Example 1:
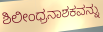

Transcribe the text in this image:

ಶಿಲೀಂಧ್ರನಾಶಕವನ್ನು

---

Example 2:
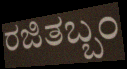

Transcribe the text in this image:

ರಜಿತಬ್ಬಂ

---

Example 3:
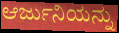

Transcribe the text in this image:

ಆರ್ಜುನಿಯನ್ನು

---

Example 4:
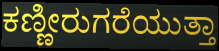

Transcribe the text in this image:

ಕಣ್ಣೀರುಗರೆಯುತ್ತಾ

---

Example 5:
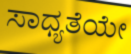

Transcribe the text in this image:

ಸಾಧ್ಯತೆಯೇ